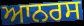
ਆਨਰਸ